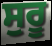
ਸੁਰੂ